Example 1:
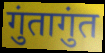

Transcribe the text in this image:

गुंतागुंत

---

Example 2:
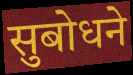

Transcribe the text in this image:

सुबोधने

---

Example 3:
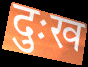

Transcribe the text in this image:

दुःख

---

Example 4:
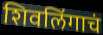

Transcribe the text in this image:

शिवलिंगाचं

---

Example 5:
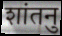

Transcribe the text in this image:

शांतनु